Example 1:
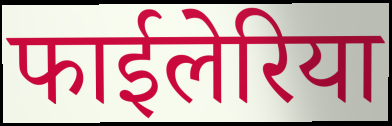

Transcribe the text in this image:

फाईलेरिया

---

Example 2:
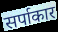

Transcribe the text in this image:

सर्पाकार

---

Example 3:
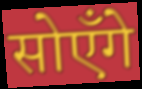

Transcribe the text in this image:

सोएँगे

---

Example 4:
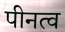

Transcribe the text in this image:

पीनत्व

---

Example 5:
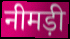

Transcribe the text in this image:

नीमड़ी